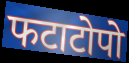
फटाटोपो